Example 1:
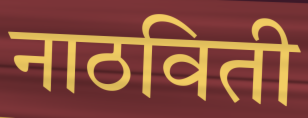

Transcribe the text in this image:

नाठविती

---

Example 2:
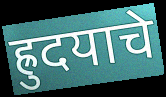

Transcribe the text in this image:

ह्रुदयाचे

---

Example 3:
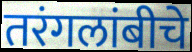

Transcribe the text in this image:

तरंगलांबीचे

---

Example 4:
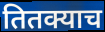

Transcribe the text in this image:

तितक्याच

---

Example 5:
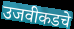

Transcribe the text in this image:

उजवीकडचे